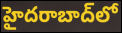
హైదరాబాద్‌లో